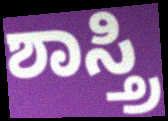
ಶಾಸ್ತ್ರಿ